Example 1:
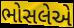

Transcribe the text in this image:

ભોસલેએ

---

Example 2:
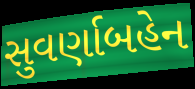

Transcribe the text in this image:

સુવર્ણાબહેન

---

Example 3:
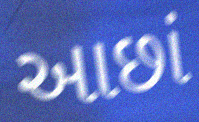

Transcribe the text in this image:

આછાં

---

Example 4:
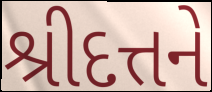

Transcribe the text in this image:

શ્રીદત્તને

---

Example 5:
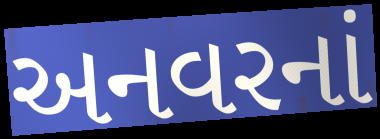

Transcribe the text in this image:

અનવરનાં